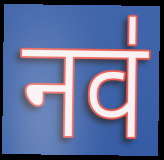
नव॑